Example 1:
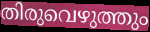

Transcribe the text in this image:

തിരുവെഴുത്തും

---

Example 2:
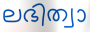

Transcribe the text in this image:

ലഭിത്വാ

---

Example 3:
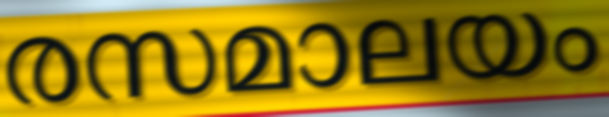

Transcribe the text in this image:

രസമാലയം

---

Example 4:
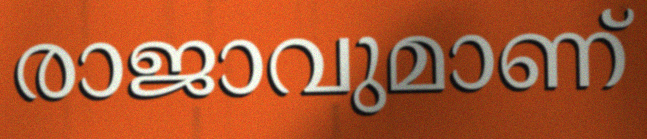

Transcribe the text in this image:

രാജാവുമാണ്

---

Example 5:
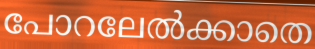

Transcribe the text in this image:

പോറലേൽക്കാതെ